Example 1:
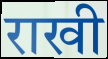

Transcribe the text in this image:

राखी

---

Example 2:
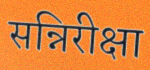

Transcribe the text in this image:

सन्निरीक्षा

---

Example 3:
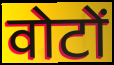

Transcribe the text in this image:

वोटों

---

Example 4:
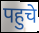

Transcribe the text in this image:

पहुचे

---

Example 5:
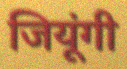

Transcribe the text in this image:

जियूंगी